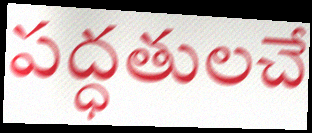
పద్ధతులచే